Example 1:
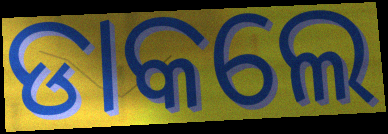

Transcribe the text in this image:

ଡାକଲେ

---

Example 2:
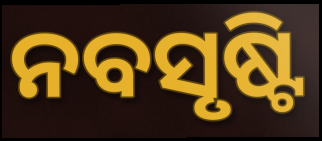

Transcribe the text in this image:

ନବସୃଷ୍ଟି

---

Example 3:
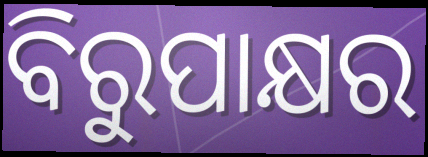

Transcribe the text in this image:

ବିରୁପାକ୍ଷର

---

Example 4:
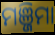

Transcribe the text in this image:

ମଞ୍ଜିମା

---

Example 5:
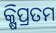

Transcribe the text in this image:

କ୍ଷିପ୍ରତମ